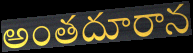
అంతదూరాన